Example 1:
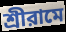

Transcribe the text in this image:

শ্রীরামে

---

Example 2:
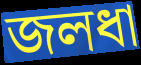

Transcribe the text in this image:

জলধা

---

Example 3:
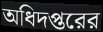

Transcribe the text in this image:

অধিদপ্তরের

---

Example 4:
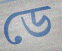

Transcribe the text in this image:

ডে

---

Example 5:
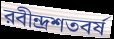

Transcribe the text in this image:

রবীন্দ্রশতবর্ষ